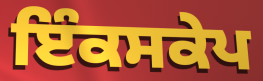
ਇੰਕਸਕੇਪ